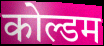
कोल्डम